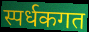
स्पर्धकगत